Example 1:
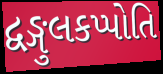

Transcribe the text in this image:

દ્વઙ્ગુલકપ્પોતિ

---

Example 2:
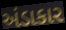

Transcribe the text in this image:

અંડાકાર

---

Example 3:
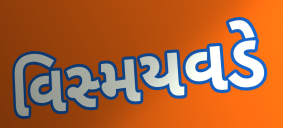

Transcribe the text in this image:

વિસ્મયવડે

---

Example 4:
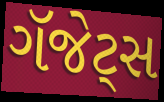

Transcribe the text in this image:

ગૅજેટ્સ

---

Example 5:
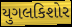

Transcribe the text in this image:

યુગલકિશોર